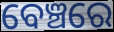
ବେଞ୍ଚରେ